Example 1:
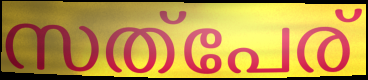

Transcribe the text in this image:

സത്പേര്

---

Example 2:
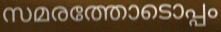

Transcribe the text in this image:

സമരത്തോടൊപ്പം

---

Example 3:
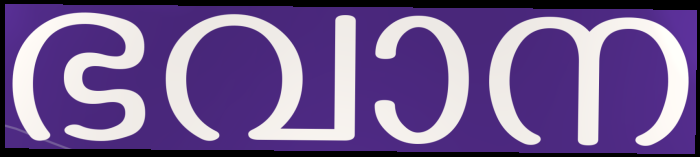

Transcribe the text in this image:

ഭവാന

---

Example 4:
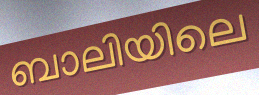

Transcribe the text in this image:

ബാലിയിലെ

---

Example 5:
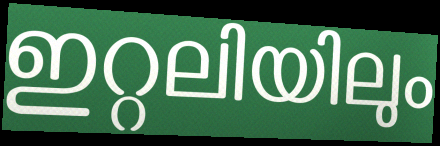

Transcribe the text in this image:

ഇറ്റലിയിലും